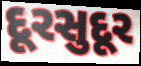
દૂરસુદૂર